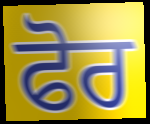
ਫੋਰ